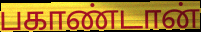
பகாண்டான்